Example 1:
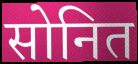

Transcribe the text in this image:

सोनित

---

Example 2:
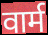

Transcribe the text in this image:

वार्म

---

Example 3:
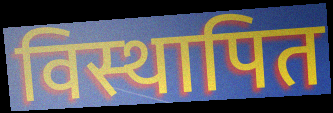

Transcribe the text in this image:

विस्थापित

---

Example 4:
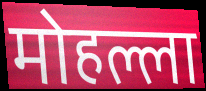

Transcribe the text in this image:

मोहल्ला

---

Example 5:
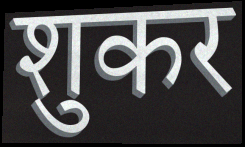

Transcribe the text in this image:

शुकर